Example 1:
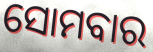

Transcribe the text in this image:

ସୋମବାର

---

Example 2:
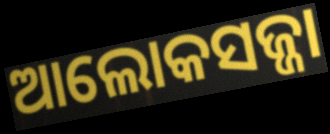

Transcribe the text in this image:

ଆଲୋକସଜ୍ଜା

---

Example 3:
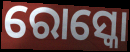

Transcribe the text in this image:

ରୋସ୍କୋ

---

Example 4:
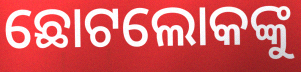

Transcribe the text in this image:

ଛୋଟଲୋକଙ୍କୁ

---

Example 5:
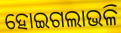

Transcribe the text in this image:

ହୋଇଗଲାଭଳି